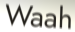
Waah